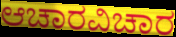
ಆಚಾರವಿಚಾರ